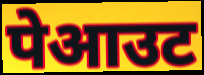
पेआउट